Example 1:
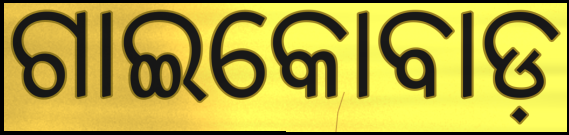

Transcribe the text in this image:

ଗାଇକୋବାଡ଼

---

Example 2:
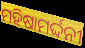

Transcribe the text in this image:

ମହିଷାମର୍ଦ୍ଦନୀ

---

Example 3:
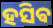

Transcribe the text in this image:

ହସିଵ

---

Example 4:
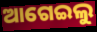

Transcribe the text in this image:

ଆଗେଇଲୁ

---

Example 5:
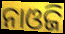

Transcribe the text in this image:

ନାଓଜି